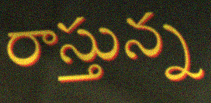
రాస్తున్న